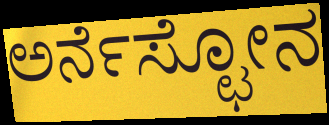
ಅರ್ನೆಸ್ಟೋನ